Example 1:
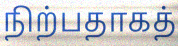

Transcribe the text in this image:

நிற்பதாகத்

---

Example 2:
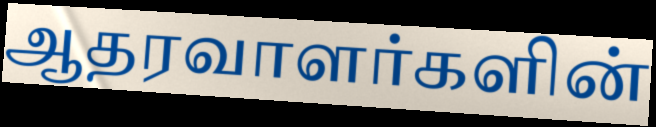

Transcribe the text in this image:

ஆதரவாளர்களின்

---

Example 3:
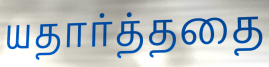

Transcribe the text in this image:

யதார்த்ததை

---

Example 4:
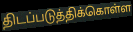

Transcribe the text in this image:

திடப்படுத்திக்கொள்ள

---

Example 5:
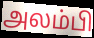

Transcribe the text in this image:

அலம்பி